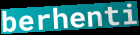
berhenti